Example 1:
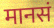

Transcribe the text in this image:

मानसं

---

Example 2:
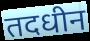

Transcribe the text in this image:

तदधीन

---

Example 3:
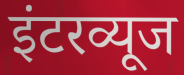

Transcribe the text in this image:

इंटरव्यूज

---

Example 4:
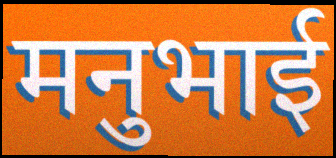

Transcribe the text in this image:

मनुभाई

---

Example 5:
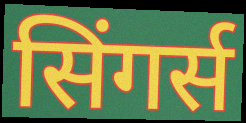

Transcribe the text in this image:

सिंगर्स